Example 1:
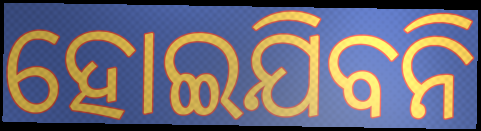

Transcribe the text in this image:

ହୋଇଯିବନି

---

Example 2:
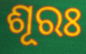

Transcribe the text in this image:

ଶୂରଃ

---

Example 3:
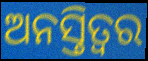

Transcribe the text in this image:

ଅନସ୍ତିତ୍ୱର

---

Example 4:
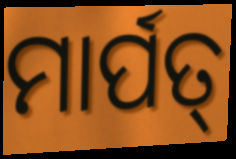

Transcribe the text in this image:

ମାର୍ପତ୍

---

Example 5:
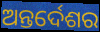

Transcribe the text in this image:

ଅନ୍ତର୍ଦେଶର